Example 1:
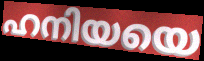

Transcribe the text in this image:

ഹനിയയെ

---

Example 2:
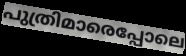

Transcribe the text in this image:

പുത്രിമാരെപ്പോലെ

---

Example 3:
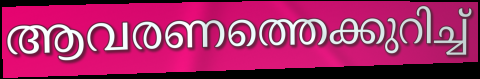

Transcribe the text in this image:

ആവരണത്തെക്കുറിച്ച്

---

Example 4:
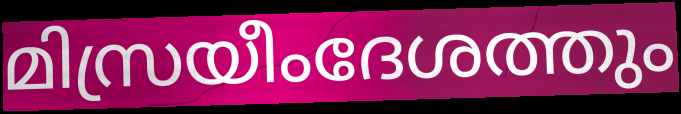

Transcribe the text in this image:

മിസ്രയീംദേശത്തും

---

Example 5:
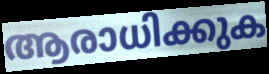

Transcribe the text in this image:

ആരാധിക്കുക